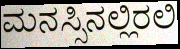
ಮನಸ್ಸಿನಲ್ಲಿರಲಿ